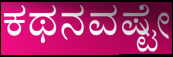
ಕಥನವಷ್ಟೇ